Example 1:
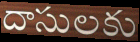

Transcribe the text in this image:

దాసులకు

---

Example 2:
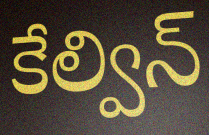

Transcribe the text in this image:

కేల్విన్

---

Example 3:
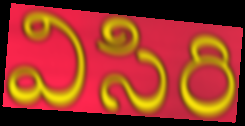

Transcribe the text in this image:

విసిరి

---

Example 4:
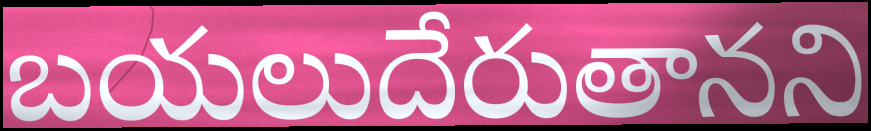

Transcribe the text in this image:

బయలుదేరుతానని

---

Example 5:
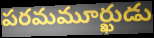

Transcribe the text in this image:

పరమమూర్ఖుడు